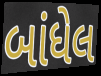
બાંધેલ